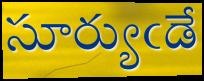
సూర్యుఁడే